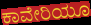
ಕಾವೇರಿಯೂ